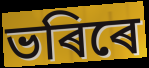
ভৰিৰে